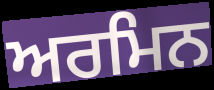
ਅਰਮਿਨ